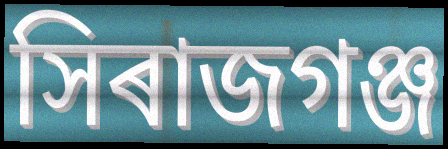
সিৰাজগঞ্জ